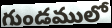
గుండములో